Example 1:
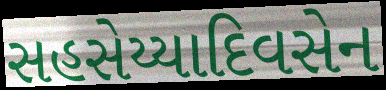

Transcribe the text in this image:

સહસેય્યાદિવસેન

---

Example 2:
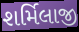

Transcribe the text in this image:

શર્મિલાજી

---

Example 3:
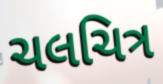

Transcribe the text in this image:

ચલચિત્ર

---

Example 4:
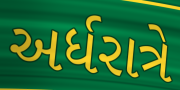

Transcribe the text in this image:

અર્ધરાત્રે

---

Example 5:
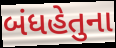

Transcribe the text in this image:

બંધહેતુના